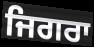
ਜਿਗਰਾ